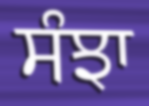
ਸੰਝਾ